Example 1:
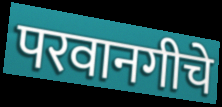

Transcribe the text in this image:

परवानगीचे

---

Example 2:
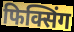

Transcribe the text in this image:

फिक्सिंग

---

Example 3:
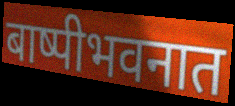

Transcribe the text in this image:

बाष्पीभवनात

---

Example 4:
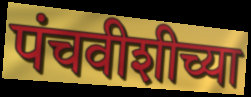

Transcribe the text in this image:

पंचवीशीच्या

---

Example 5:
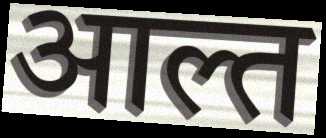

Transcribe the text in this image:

आल्त